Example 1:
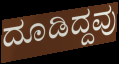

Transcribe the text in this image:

ದೂಡಿದ್ದವು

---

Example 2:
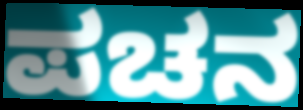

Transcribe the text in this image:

ಪಚನ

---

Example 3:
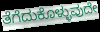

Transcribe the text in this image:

ತೆಗೆದುಕೊಳ್ಳುವುದೇ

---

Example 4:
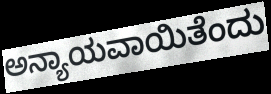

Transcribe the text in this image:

ಅನ್ಯಾಯವಾಯಿತೆಂದು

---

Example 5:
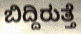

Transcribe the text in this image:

ಬಿದ್ದಿರುತ್ತೆ